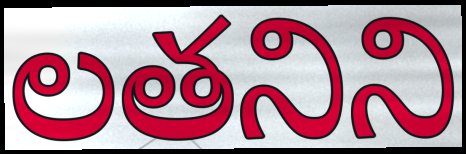
లతనిని